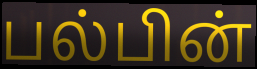
பல்பின்